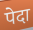
पेदा